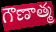
గౌణాత్మ